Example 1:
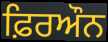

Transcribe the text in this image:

ਫ਼ਿਰਔਨ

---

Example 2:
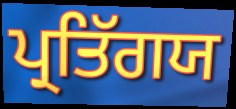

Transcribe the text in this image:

ਪ੍ਰਤਿੱਗਯ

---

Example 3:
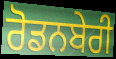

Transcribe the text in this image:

ਰੋਡਨਬੇਰੀ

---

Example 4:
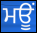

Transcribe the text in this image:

ਮਊਂ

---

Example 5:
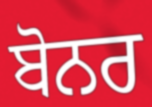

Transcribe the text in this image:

ਬੋਨਰ